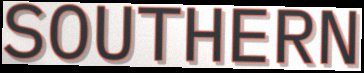
SOUTHERN